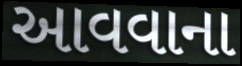
આવવાના